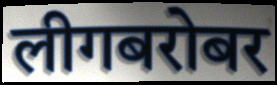
लीगबरोबर